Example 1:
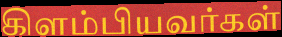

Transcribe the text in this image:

கிளம்பியவர்கள்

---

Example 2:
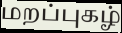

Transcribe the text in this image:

மறப்புகழ்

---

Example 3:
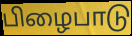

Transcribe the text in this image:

பிழைபாடு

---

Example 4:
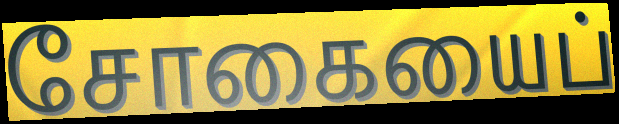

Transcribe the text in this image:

சோகையைப்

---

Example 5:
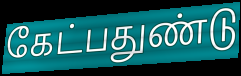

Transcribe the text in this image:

கேட்பதுண்டு